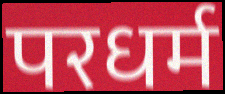
परधर्म